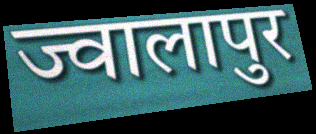
ज्वालापुर